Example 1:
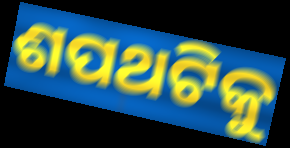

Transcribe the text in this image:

ଶପଥଟିକୁ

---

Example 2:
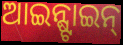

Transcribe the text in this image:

ଆଇନ୍ଷ୍ଟାଇନ୍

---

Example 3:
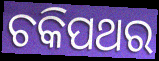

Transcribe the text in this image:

ଚକିପଥର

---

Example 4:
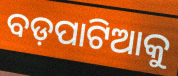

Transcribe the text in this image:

ବଡ଼ପାଟିଆକୁ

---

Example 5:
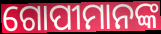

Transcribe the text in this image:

ଗୋପୀମାନଙ୍କ